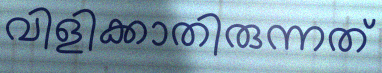
വിളിക്കാതിരുന്നത്